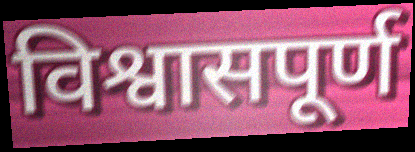
विश्वासपूर्ण